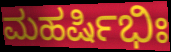
ಮಹರ್ಷಿಭಿಃ